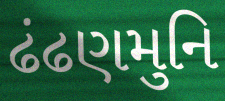
ઢંઢણમુનિ